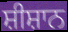
ਸ਼ੀਸ਼ਾਨ